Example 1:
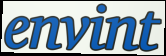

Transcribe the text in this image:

envint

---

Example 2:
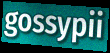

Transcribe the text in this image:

gossypii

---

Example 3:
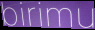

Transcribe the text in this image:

birimu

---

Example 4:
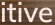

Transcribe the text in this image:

itive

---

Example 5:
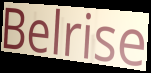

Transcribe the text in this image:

Belrise